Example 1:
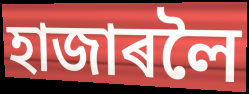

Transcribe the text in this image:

হাজাৰলৈ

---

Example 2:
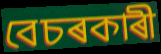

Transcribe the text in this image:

বেচৰকাৰী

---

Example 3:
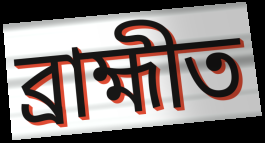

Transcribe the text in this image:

ব্ৰাহ্মীত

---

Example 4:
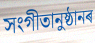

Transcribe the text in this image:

সংগীতানুষ্ঠানৰ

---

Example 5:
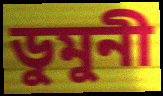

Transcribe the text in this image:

ডুমুনী